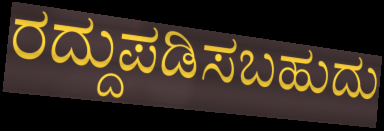
ರದ್ದುಪಡಿಸಬಹುದು